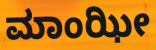
ಮಾಂಝೀ